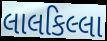
લાલકિલ્લા